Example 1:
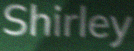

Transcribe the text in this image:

Shirley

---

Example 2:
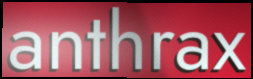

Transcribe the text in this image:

anthrax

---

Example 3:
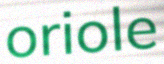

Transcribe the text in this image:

oriole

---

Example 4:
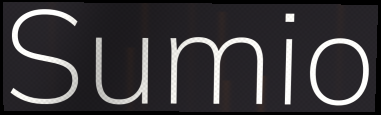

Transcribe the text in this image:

Sumio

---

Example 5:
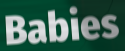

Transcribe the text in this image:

Babies